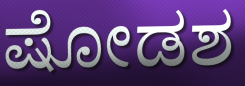
ಷೋಡಶ